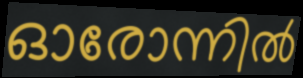
ഓരോന്നിൽ